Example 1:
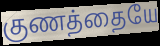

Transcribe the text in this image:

குணத்தையே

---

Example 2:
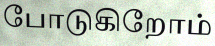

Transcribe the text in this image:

போடுகிறோம்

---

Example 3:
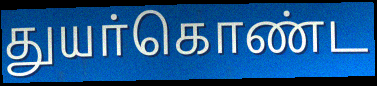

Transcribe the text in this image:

துயர்கொண்ட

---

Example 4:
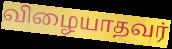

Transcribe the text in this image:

விழையாதவர்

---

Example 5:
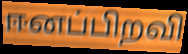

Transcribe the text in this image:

ஈனப்பிறவி